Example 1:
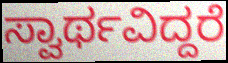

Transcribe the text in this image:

ಸ್ವಾರ್ಥವಿದ್ದರೆ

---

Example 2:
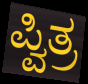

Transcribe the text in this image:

ಪ್ವಿತ್ರ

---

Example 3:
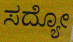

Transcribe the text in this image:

ಸದ್ಯೋ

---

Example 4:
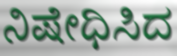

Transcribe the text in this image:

ನಿಷೇಧಿಸಿದ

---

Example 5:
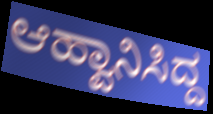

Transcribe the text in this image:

ಆಹ್ವಾನಿಸಿದ್ದ